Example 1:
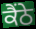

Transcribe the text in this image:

ਕੈਂਠੇ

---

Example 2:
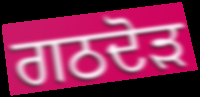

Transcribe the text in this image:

ਗਠਦੋੜ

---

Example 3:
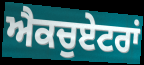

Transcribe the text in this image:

ਐਕਚੁਏਟਰਾਂ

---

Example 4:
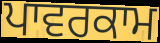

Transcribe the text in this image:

ਪਾਵਰਕਾਮ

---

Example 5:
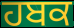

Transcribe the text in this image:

ਹਬਕ